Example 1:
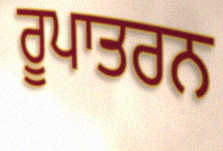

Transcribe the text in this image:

ਰੂਪਾਤਰਨ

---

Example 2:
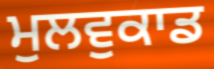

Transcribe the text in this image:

ਮੁਲਵੁਕਾਡ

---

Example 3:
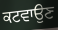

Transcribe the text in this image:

ਕਟਵਾਉਣ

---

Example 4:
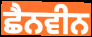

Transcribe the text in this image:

ਛੈਨਵੀਨ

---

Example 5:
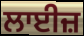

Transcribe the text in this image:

ਲਾਈਜ਼